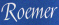
Roemer